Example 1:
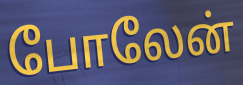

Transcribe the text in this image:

போலேன்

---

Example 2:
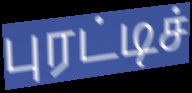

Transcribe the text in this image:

புரட்டிச்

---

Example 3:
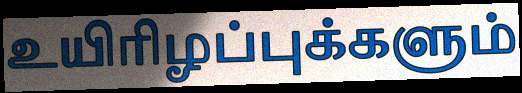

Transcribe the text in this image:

உயிரிழப்புக்களும்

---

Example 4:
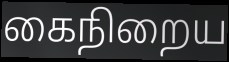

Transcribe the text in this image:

கைநிறைய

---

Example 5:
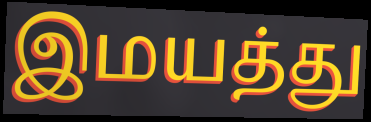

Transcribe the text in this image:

இமயத்து